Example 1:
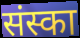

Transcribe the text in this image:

संस्का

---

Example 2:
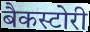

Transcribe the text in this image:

बैकस्टोरी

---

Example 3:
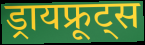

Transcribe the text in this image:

ड्रायफ्रूट्स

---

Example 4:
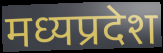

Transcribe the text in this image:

मध्‍यप्रदेश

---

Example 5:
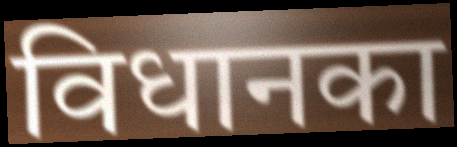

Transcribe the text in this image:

विधानका